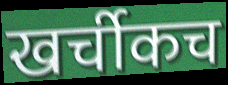
खर्चीकच